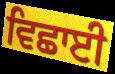
ਵਿਛਾਈ